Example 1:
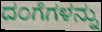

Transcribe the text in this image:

ದಂಗೆಗಳನ್ನು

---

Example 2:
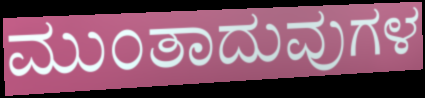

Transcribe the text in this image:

ಮುಂತಾದುವುಗಳ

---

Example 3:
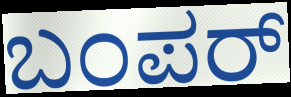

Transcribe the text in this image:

ಬಂಪರ್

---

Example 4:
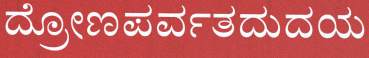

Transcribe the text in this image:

ದ್ರೋಣಪರ್ವತದುದಯ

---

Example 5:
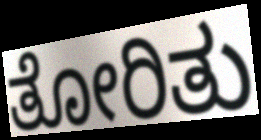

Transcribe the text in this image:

ತೋರಿತು